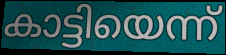
കാട്ടിയെന്ന്